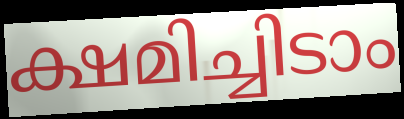
ക്ഷമിച്ചിടാം